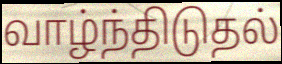
வாழ்ந்திடுதல்